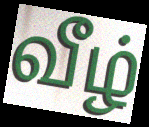
வீழ்